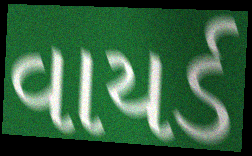
વાયર્ડ